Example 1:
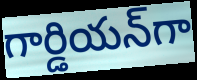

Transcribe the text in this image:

గార్డియన్‌గా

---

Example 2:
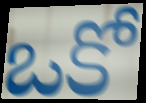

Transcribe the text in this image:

ఒకో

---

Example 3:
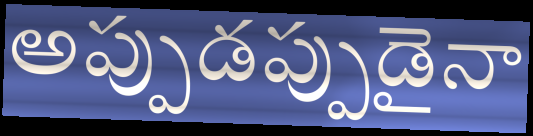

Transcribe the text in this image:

అప్పుడప్పుడైనా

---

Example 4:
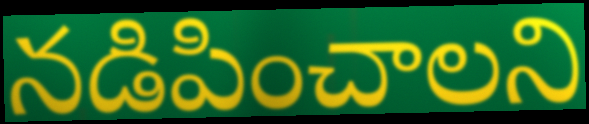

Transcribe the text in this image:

నడిపించాలని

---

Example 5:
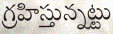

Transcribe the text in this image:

గ్రహిస్తున్నట్టు